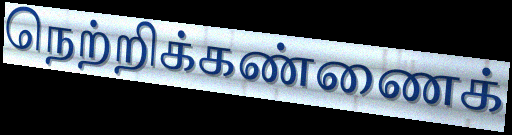
நெற்றிக்கண்ணைக்